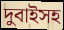
দুবাইসহ